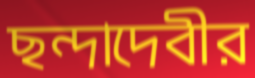
ছন্দাদেবীর